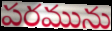
పరమును